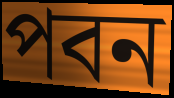
পবন